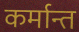
कर्मान्त